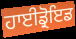
ਹਾਈਡ੍ਰੋਇਡ